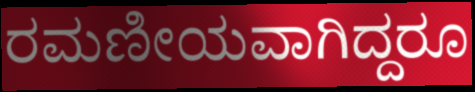
ರಮಣೀಯವಾಗಿದ್ದರೂ